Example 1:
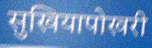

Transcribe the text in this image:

सुखियापोखरी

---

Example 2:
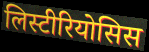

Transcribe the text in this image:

लिस्टीरियोसिस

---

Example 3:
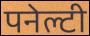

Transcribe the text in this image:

पनेल्टी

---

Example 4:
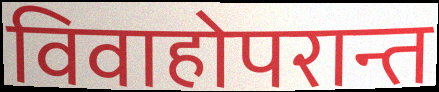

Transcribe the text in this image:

विवाहोपरान्त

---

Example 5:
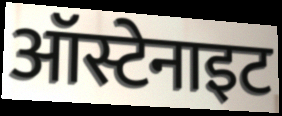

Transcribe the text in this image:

ऑस्टेनाइट